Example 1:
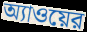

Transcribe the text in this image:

অ্যাওয়ের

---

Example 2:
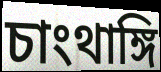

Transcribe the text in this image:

চাংথাঙ্গি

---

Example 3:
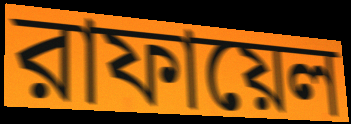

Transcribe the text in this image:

রাফায়েল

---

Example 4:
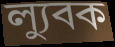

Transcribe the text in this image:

ল্যুবক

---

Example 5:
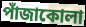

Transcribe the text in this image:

পাঁজাকোলা